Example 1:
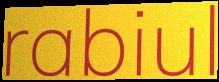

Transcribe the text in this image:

rabiul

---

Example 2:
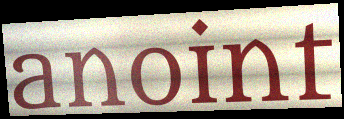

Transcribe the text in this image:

anoint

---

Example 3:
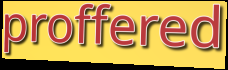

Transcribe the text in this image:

proffered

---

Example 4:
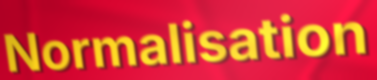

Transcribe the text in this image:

Normalisation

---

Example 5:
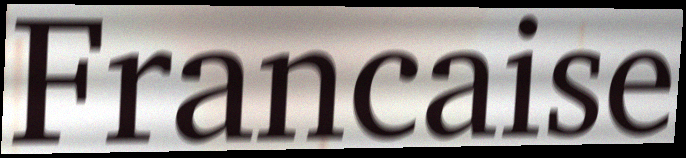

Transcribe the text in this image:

Francaise